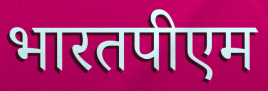
भारतपीएम